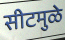
सीटमुळे